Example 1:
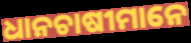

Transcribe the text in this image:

ଧାନଚାଷୀମାନେ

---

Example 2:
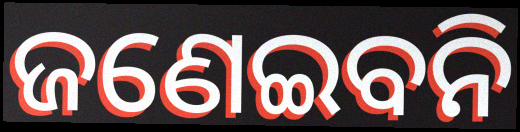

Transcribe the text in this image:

ଜଣେଇବନି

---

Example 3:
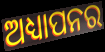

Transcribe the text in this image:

ଅଧ୍ୟାପନର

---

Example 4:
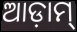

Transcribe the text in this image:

ଆଡ଼ାମ୍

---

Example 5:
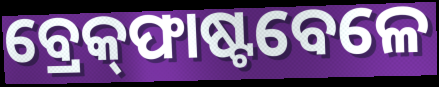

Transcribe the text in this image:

ବ୍ରେକ୍‌ଫାଷ୍ଟବେଳେ